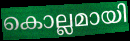
കൊല്ലമായി